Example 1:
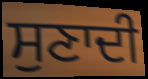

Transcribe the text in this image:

ਸੁਣਾਦੀ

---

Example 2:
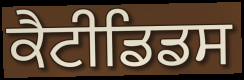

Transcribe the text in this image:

ਕੈਟੀਡਿਡਸ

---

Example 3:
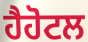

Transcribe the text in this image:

ਹੈਹੋਟਲ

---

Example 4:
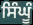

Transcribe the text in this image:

ਸਿੰਘੂੰ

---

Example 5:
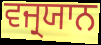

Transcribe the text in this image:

ਵਜ੍ਰਯਾਨ